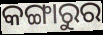
କଙ୍ଗାରୁର